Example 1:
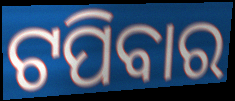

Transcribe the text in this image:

ଟପିବାର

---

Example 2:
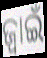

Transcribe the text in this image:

ଜ୍ବାଇଁ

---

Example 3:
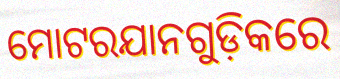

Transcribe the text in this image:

ମୋଟରଯାନଗୁଡ଼ିକରେ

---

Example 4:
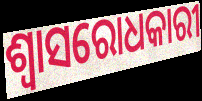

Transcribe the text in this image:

ଶ୍ୱାସରୋଧକାରୀ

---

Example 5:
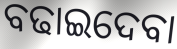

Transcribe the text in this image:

ବଢାଇଦେବା